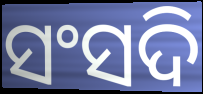
ସଂସଦି